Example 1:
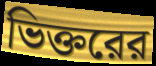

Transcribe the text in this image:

ভিক্তরের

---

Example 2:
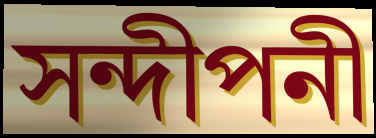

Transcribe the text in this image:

সন্দীপনী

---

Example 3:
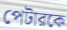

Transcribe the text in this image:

পেটারকে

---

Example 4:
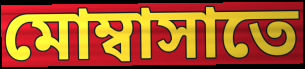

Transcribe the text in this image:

মোম্বাসাতে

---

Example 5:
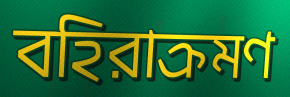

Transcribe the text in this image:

বহিরাক্রমণ